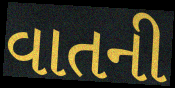
વાતની